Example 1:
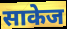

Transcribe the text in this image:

साकेज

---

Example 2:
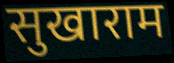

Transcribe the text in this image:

सुखाराम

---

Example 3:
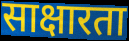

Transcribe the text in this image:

साक्षारता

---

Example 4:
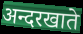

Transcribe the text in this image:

अन्दरखाते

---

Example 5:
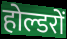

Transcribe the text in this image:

होल्‍डरों